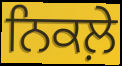
ਨਿਕਲ਼ੇ